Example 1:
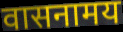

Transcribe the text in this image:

वासनामय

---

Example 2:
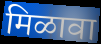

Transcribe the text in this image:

मिळावा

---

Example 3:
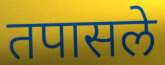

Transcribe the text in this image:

तपासले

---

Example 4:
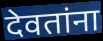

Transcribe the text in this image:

देवतांना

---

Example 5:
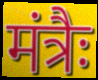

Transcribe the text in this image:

मंत्रैः